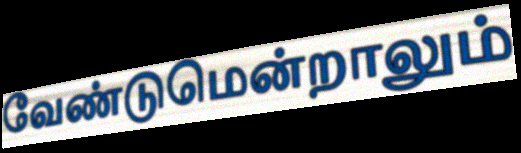
வேண்டுமென்றாலும்